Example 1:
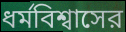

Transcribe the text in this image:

ধর্মবিশ্বাসের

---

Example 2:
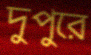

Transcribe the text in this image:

দুপুরে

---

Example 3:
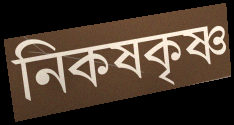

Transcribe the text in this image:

নিকষকৃষ্ণ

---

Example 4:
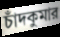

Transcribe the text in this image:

চাঁদকুমার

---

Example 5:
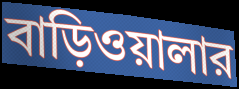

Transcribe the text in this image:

বাড়িওয়ালার